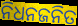
ନିଧନଜନିତ